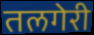
तलगेरी